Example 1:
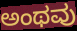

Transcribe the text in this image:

ಅಂಥವು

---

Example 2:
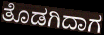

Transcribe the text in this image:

ತೊಡಗಿದಾಗ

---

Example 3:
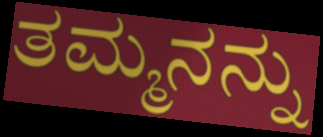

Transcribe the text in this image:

ತಮ್ಮನನ್ನು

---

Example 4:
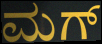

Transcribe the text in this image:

ಮಗ್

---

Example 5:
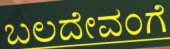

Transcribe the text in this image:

ಬಲದೇವಂಗೆ